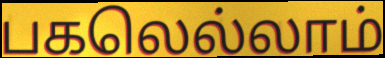
பகலெல்லாம்